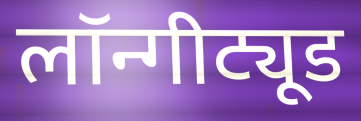
लॉन्गीट्यूड